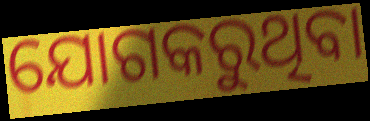
ଯୋଗକରୁଥିବା